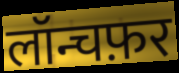
लॉन्चफ़र